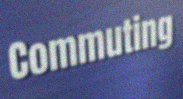
Commuting